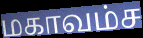
மகாவம்ச